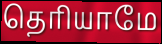
தெரியாமே